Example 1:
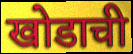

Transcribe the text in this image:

खोडाची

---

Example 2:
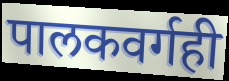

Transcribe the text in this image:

पालकवर्गही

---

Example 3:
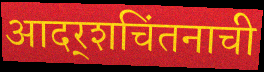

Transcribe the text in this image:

आदर्शचिंतनाची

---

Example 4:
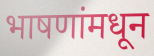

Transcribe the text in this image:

भाषणांमधून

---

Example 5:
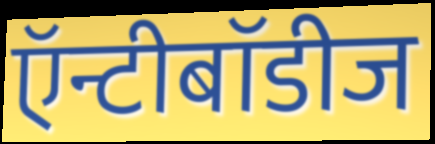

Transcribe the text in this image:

ऍन्टीबॉडीज